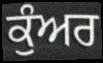
ਕੁੰਅਰ